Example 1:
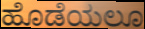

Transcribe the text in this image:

ಹೊಡೆಯಲೂ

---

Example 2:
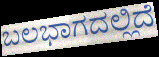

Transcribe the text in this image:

ಬಲಭಾಗದಲ್ಲಿದೆ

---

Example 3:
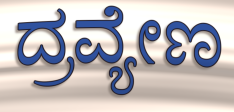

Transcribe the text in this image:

ದ್ರವ್ಯೇಣ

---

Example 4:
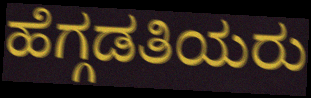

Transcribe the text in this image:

ಹೆಗ್ಗಡತಿಯರು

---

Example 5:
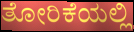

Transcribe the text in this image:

ತೋರಿಕೆಯಲ್ಲಿ